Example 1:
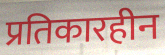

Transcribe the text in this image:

प्रतिकारहीन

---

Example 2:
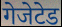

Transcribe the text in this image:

गेजेटेड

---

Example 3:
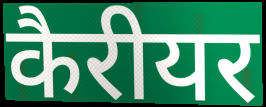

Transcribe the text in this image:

कैरीयर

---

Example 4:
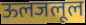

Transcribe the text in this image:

ऊलजलूल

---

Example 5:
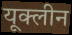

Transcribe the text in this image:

यूक्लीन